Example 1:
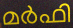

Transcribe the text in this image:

മർഫി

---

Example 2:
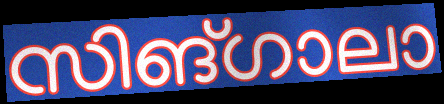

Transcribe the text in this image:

സിങ്ഗാലാ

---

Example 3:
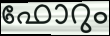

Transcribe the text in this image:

ഫോറും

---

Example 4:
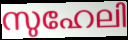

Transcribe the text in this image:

സുഹേലി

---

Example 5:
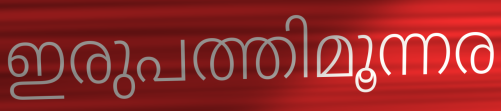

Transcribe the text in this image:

ഇരുപത്തിമൂന്നര